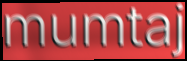
mumtaj